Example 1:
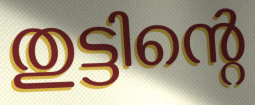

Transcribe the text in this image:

തുട്ടിന്റെ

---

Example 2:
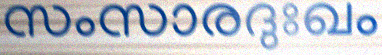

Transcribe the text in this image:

സംസാരദുഃഖം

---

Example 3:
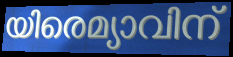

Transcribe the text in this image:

യിരെമ്യാവിന്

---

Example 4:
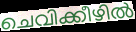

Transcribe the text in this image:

ചെവിക്കീഴിൽ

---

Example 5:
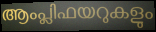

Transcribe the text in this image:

ആംപ്ലിഫയറുകളും